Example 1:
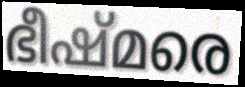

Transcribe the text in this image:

ഭീഷ്മരെ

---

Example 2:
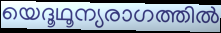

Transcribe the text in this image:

യെദൂഥൂന്യരാഗത്തിൽ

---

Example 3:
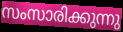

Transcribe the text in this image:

സംസാരിക്കുന്നു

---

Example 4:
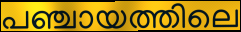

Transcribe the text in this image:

പഞ്ചായത്തിലെ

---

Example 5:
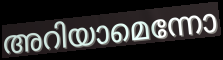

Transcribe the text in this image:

അറിയാമെന്നോ